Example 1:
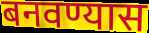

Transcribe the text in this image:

बनवण्यास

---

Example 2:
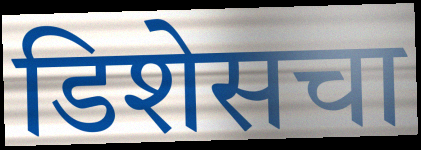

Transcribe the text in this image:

डिशेसचा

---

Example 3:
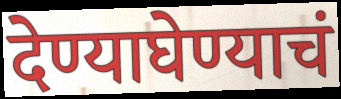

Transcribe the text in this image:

देण्याघेण्याचं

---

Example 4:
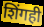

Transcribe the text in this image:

शिंगही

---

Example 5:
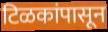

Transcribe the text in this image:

टिळकांपासून